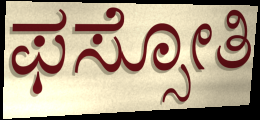
ಫಸ್ಸೋತಿ